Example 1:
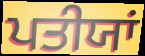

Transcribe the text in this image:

ਪਤੀਯਾਂ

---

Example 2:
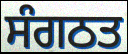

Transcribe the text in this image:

ਸੰਗਠਤ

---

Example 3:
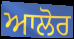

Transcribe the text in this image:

ਆਲੋਰ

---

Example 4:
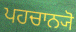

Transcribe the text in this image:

ਪਹਚਾਨ੍ਯੋ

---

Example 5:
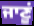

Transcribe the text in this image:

ਜਾਣੂਂ